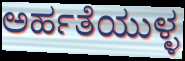
ಅರ್ಹತೆಯುಳ್ಳ